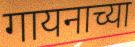
गायनाच्या